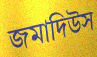
জমাদিউস